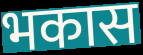
भकास